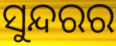
ସୁନ୍ଦରର